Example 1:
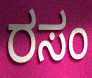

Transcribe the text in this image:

ರಸಂ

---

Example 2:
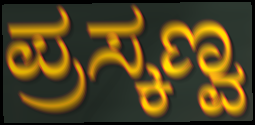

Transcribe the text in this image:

ಪ್ರಸ್ಕಣ್ವ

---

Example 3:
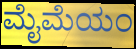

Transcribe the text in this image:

ಮೈಮೆಯಂ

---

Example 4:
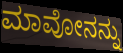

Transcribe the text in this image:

ಮಾವೋನನ್ನು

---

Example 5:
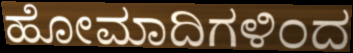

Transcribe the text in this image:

ಹೋಮಾದಿಗಳಿಂದ